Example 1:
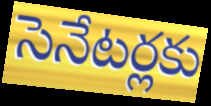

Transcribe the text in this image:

సెనేటర్లకు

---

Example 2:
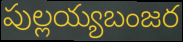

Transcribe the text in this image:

పుల్లయ్యబంజర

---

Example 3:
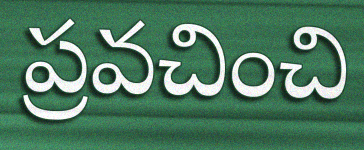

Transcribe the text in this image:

ప్రవచించి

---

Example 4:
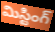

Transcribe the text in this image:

మిస్టింగ్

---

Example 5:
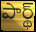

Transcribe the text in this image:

పార్థ్